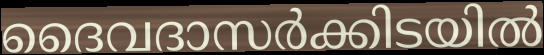
ദൈവദാസർക്കിടയിൽ